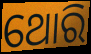
ଥୋରି